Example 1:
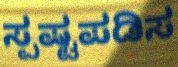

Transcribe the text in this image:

ಸ್ಪಷ್ಟಪಡಿಸ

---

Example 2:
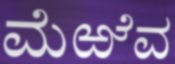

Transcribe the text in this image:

ಮೆಱೆವ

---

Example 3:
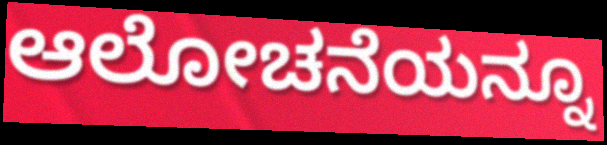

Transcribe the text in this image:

ಆಲೋಚನೆಯನ್ನೂ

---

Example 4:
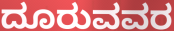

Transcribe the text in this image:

ದೂರುವವರ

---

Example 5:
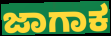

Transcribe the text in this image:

ಜಾಗಾಕ